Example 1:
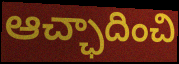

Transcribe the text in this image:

ఆచ్ఛాదించి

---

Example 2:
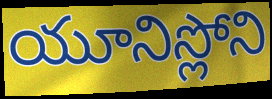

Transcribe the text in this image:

యూనిస్లోని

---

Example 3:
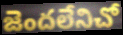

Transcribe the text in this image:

జెందలేనిచో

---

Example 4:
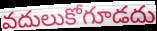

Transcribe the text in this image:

వదులుకోగూడదు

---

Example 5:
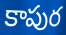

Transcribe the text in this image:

కాపుర